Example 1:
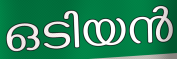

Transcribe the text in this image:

ഒടിയൻ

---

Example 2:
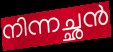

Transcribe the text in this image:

നിന്നച്ഛൻ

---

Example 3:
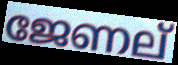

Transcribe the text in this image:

ജേണല്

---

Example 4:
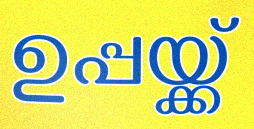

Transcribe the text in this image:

ഉപ്പയ്ക്ക്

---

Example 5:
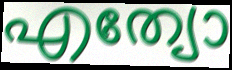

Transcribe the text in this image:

എത്യോ